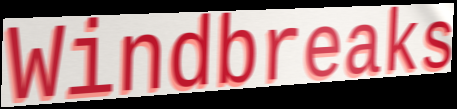
Windbreaks